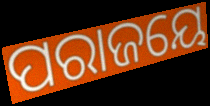
ପରାଜୟେ